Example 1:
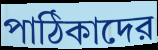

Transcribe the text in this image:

পাঠিকাদের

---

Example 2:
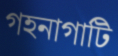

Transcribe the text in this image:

গহনাগাটি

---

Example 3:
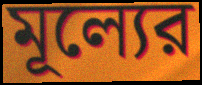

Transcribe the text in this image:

মূল্যের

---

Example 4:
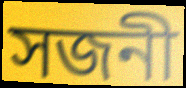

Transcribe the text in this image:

সজনী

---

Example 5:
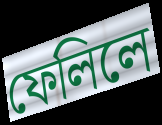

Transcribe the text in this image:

ফেলিলে